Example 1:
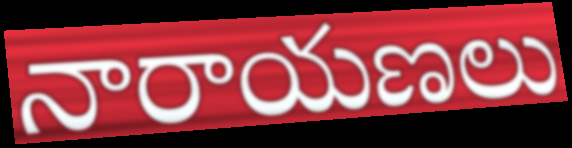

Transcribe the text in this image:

నారాయణలు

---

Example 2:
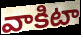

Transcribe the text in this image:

వాకిటా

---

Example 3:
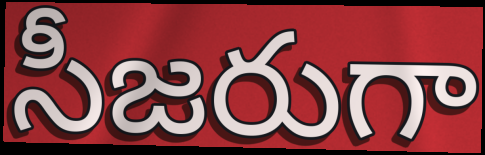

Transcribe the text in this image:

సీజరుగా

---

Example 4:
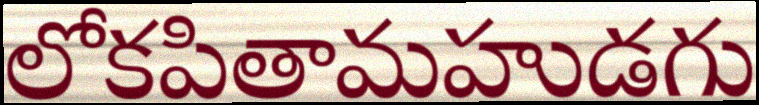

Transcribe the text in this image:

లోకపితామహుడగు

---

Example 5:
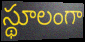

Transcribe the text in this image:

స్థూలంగా